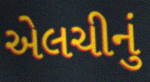
એલચીનું